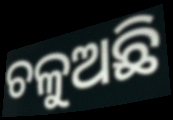
ଚଳୁଅଛି